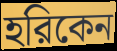
হরিকেন